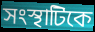
সংস্থাটিকে